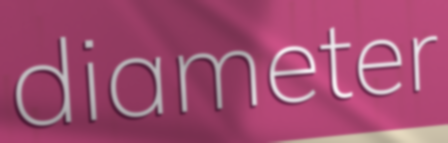
diameter